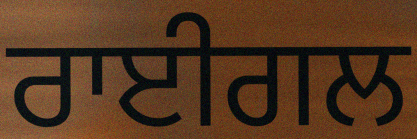
ਰਾਈਗਲ